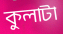
কুলাটা